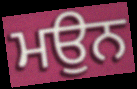
ਮਉਨ